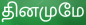
தினமுமே